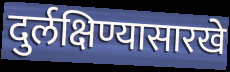
दुर्लक्षिण्यासारखे